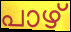
പാഴ്